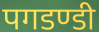
पगडण्डी